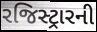
રજિસ્ટ્રારની